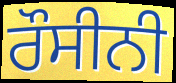
ਰੌਸੀਨੀ